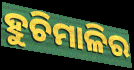
ହୁଚିମାଳିର